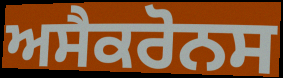
ਅਸੈਕਰੋਨਸ